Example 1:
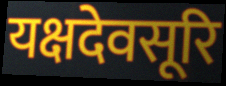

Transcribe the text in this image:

यक्षदेवसूरि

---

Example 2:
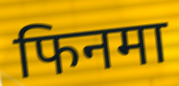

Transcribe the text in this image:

फिनमा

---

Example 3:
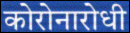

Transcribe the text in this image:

कोरोनारोधी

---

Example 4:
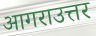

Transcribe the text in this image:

आगराउत्तर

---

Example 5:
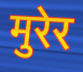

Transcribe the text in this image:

मुरेर